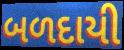
બળદાયી